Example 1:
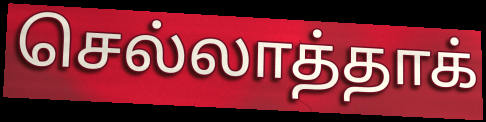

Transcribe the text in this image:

செல்லாத்தாக்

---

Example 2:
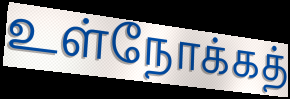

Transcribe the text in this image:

உள்நோக்கத்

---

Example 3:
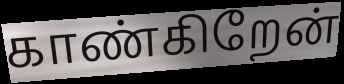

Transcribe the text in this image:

காண்கிறேன்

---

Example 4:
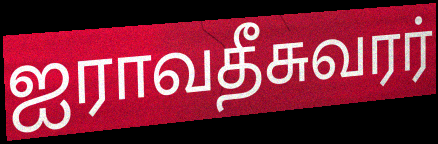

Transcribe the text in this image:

ஐராவதீசுவரர்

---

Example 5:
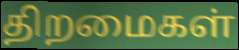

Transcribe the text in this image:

திறமைகள்